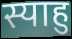
स्याहु